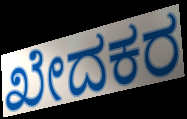
ಖೇದಕರ